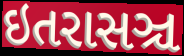
ઇતરાસઞ્ચ